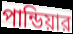
পান্ডিয়ার